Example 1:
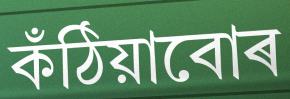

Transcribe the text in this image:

কঁঠিয়াবোৰ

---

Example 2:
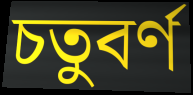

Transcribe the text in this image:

চতুবৰ্ণ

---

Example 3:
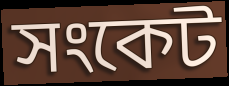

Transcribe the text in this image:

সংকেট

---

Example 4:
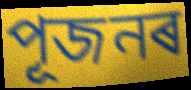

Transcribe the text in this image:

পূজনৰ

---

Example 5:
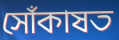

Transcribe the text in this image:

সোঁকাষত